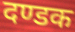
दण्डक